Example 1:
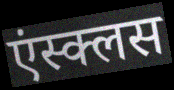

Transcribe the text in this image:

एंस्क्लस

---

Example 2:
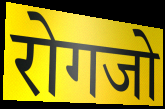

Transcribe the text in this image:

रोगजो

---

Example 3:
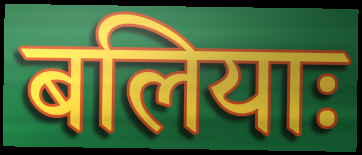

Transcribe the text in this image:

बलियाः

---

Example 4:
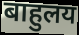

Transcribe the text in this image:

बाहुलय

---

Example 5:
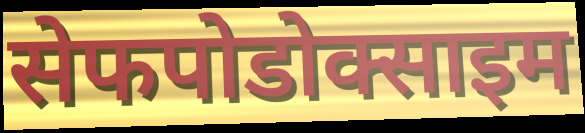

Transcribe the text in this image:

सेफपोडोक्साइम